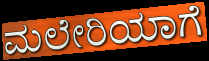
ಮಲೇರಿಯಾಗೆ